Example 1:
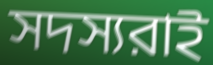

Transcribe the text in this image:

সদস্যরাই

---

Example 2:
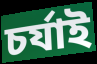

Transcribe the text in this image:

চর্যাই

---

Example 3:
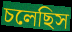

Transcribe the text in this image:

চলেছিস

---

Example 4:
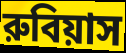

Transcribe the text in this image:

রুবিয়াস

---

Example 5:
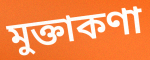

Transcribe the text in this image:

মুক্তাকণা